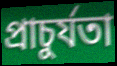
প্রাচুর্যতা